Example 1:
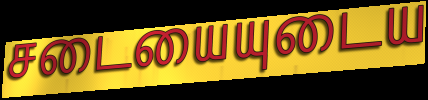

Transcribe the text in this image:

சடையையுடைய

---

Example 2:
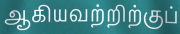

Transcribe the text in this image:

ஆகியவற்றிற்குப்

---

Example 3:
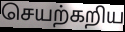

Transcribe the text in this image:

செயற்கறிய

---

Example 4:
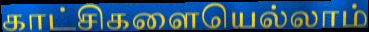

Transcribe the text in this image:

காட்சிகளையெல்லாம்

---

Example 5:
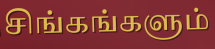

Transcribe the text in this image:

சிங்கங்களும்